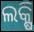
ଲକ୍ଷି